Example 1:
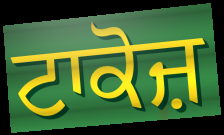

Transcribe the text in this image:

ਟਾਕੋਜ਼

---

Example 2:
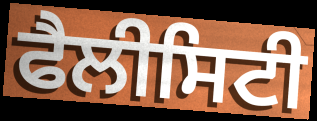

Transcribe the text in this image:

ਫੈਲੀਸਿਟੀ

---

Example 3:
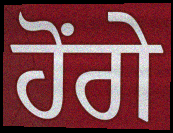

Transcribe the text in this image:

ਹੋਂਗੇ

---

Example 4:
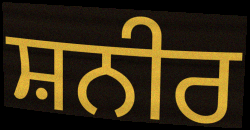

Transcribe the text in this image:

ਸ਼ਨੀਰ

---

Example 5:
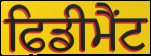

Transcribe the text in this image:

ਫਿਡੀਮੈਂਟ